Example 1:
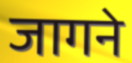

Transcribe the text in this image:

जागने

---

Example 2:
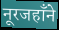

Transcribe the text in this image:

नूरजहाँने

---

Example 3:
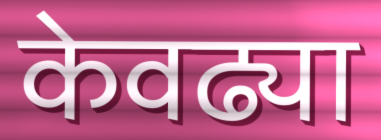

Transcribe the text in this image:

केवढ्या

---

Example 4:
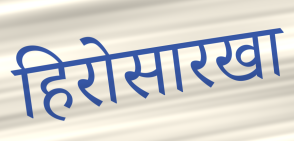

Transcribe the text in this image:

हिरोसारखा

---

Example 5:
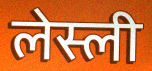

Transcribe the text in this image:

लेस्ली